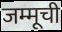
जम्मूची